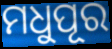
ମଧୁପୂର